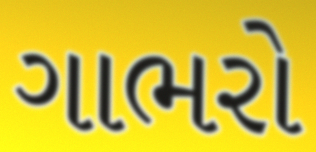
ગાભરો